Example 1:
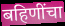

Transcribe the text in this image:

बहिणींचा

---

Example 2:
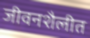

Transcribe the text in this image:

जीवनशैलीत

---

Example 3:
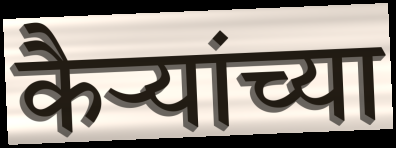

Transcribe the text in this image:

कैऱ्यांच्या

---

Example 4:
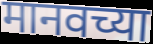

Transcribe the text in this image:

मानवच्या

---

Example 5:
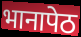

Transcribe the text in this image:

भानापेठ